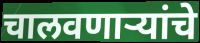
चालवणाऱ्यांचे